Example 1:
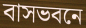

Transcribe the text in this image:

বাসভবনে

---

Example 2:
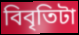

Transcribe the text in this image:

বিবৃতিটা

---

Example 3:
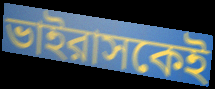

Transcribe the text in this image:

ভাইরাসকেই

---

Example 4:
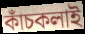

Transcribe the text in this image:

কাঁচকলাই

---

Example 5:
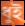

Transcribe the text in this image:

ধুই